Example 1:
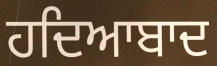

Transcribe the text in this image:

ਹਦਿਆਬਾਦ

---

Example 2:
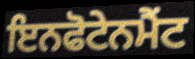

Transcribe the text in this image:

ਇਨਫੋਟੇਨਮੈਂਟ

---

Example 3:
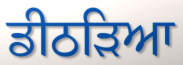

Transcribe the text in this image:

ਡੀਠੜਿਆ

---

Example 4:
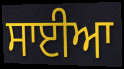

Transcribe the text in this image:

ਸਾਈਆ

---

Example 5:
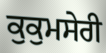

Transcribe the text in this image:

ਕੁਕੁਮਸੇਰੀ